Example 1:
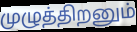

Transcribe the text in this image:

முழுத்திறனும்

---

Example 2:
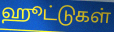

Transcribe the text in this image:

ஹூட்டுகள்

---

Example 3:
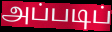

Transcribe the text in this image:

அப்படிப்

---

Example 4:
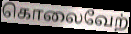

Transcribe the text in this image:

கொலைவேற்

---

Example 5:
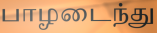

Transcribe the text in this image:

பாழடைந்து